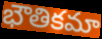
భౌతికమా